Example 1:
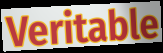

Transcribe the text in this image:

Veritable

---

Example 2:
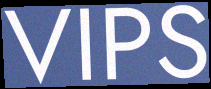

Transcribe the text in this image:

VIPS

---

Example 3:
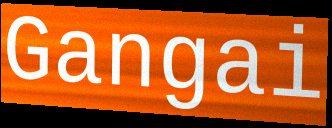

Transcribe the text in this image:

Gangai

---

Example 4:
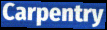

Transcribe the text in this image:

Carpentry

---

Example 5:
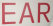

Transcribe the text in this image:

EAR